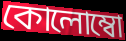
কোলোম্বো